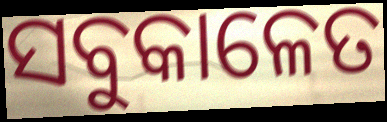
ସବୁକାଳେତ